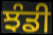
ਝੰਡੀ